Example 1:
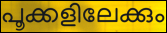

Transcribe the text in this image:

പൂക്കളിലേക്കും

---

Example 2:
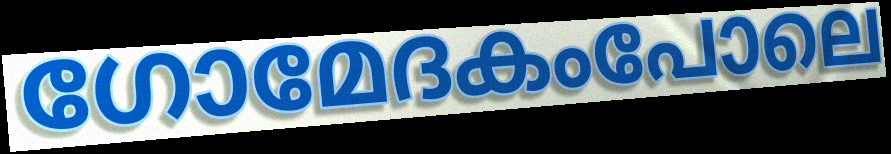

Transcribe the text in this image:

ഗോമേദകംപോലെ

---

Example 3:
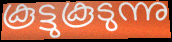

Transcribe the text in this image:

കൂട്ടുകൂടുന്നു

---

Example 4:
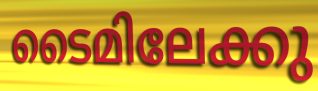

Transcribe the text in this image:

ടൈമിലേക്കു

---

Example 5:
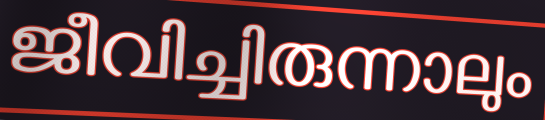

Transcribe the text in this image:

ജീവിച്ചിരുന്നാലും